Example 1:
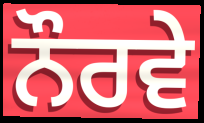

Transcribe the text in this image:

ਨੌਰਵੇ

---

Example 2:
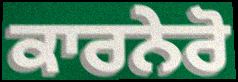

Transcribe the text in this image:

ਕਾਰਨੇਰੋ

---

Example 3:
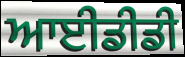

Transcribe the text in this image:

ਆਈਡੀਡੀ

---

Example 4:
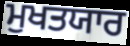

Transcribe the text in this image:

ਮੁਖਤਯਾਰ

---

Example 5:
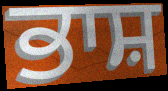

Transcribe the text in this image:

ਭਾਸ਼